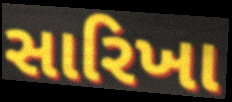
સારિખા